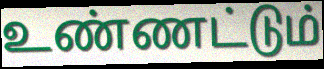
உண்ணட்டும்